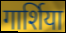
गार्शिया